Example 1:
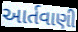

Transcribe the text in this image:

આર્તવાણી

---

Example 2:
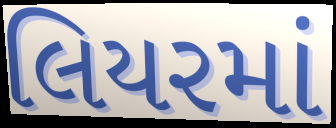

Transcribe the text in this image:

લિયરમાં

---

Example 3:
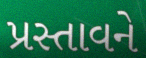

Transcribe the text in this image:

પ્રસ્તાવને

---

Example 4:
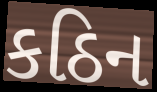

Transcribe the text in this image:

કઠિન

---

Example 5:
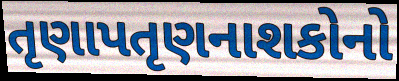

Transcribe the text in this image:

તૃણાપતૃણનાશકોનો